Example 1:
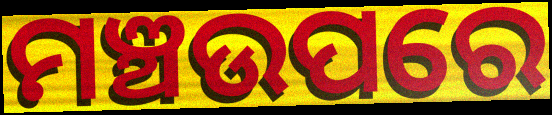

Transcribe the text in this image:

ମଞ୍ଚଉପରେ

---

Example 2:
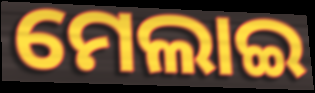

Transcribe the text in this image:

ମେଲାଇ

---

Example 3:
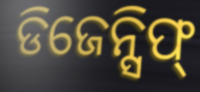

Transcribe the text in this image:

ଡିଜେନ୍ସିଫ୍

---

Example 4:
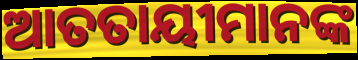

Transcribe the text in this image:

ଆତତାୟୀମାନଙ୍କ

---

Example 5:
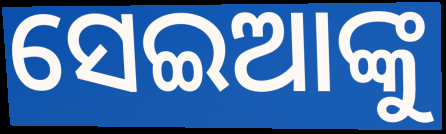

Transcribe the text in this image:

ସେଇଆଙ୍କୁ